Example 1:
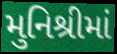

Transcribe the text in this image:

મુનિશ્રીમાં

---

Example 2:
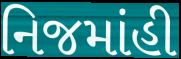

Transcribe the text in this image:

નિજમાંહી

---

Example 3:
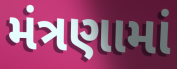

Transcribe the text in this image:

મંત્રણામાં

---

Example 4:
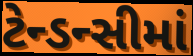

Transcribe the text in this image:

ટેન્ડન્સીમાં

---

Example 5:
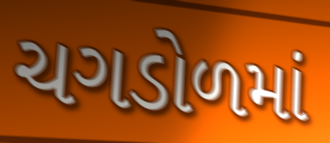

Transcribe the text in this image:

ચગડોળમાં